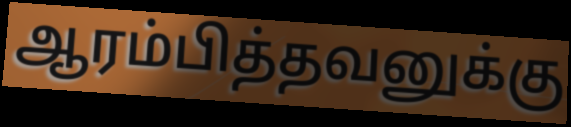
ஆரம்பித்தவனுக்கு